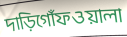
দাড়িগোঁফওয়ালা